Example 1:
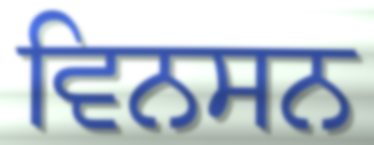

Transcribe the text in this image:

ਵਿਨਸਨ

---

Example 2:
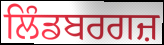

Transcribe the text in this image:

ਲਿੰਡਬਰਗਜ਼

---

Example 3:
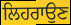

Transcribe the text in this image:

ਲਿਹਰਾਉਣ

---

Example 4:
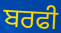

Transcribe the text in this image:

ਬਰਫੀ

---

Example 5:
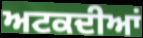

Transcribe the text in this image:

ਅਟਕਦੀਆਂ